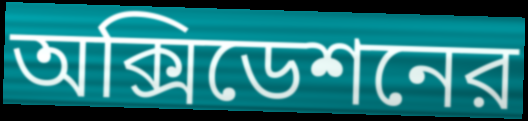
অক্সিডেশনের